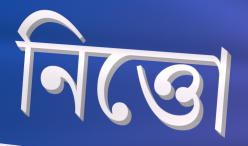
নিত্তো